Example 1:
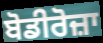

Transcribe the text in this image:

ਬੋਡੀਰੋਜ਼ਾ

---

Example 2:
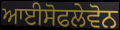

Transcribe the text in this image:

ਆਈਸੋਫਲੇਵੋਨ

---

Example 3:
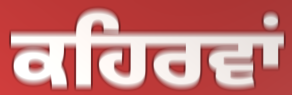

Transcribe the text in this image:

ਕਹਿਰਵਾਂ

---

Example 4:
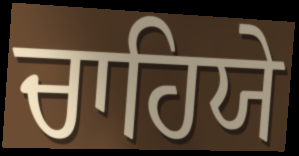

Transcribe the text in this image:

ਚਾਹਿਯੇ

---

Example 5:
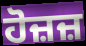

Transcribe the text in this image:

ਹੋਜ਼ਜ਼